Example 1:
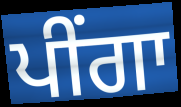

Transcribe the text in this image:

ਪੀਂਗਾ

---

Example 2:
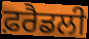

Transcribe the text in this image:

ਫ਼ਰੈਡਲੀ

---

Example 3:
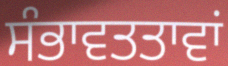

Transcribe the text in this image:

ਸੰਭਾਵਤਤਾਵਾਂ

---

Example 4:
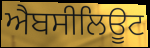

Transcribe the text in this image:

ਐਬਸੀਲਿਊਟ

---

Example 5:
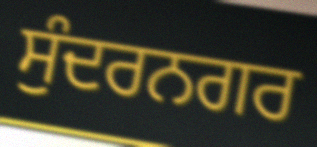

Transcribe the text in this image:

ਸੁੰਦਰਨਗਰ